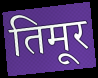
तिमूर